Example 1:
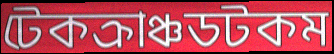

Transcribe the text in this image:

টেকক্রাঞ্চডটকম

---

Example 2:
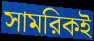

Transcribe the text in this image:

সামরিকই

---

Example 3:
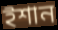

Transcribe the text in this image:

ইশান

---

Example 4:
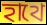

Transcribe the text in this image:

হাথে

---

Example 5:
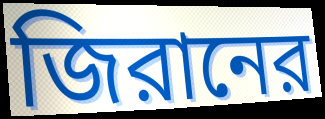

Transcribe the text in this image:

জিরানের